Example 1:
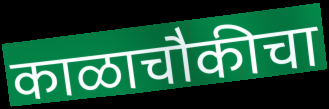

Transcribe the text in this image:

काळाचौकीचा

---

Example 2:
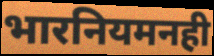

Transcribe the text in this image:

भारनियमनही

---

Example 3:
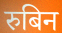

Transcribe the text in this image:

रुबिन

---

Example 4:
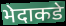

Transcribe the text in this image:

भेदाकडे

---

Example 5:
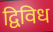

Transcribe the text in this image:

द्विविध